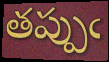
తప్పుఁ